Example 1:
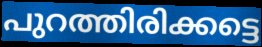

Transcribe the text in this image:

പുറത്തിരിക്കട്ടെ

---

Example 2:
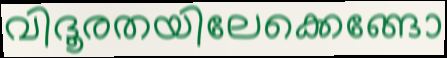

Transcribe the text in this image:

വിദൂരതയിലേക്കെങ്ങോ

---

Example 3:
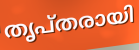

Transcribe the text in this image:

തൃപ്തരായി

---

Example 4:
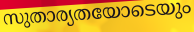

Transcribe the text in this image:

സുതാര്യതയോടെയും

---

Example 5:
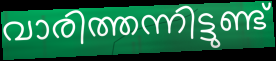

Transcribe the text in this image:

വാരിത്തന്നിട്ടുണ്ട്